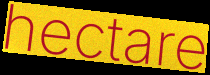
hectare